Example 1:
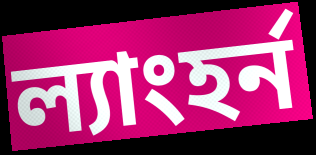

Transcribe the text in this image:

ল্যাংহর্ন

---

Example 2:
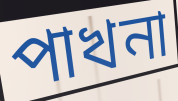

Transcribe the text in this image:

পাখনা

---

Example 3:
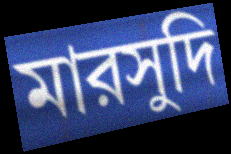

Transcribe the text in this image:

মারসুদি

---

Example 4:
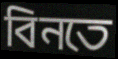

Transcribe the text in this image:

বিনতে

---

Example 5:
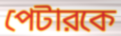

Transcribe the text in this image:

পেটারকে